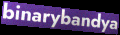
binarybandya